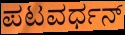
ಪಟವರ್ಧನ್